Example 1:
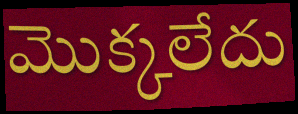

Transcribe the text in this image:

మొక్కలేదు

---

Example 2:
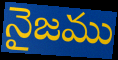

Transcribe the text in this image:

నైజము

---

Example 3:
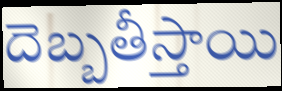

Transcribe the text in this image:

దెబ్బతీస్తాయి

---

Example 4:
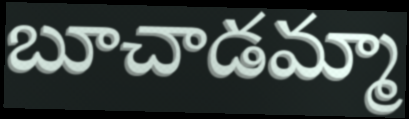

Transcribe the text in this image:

బూచాడమ్మా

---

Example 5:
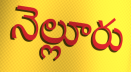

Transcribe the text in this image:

నెల్లూరు